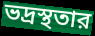
ভদ্রস্থতার